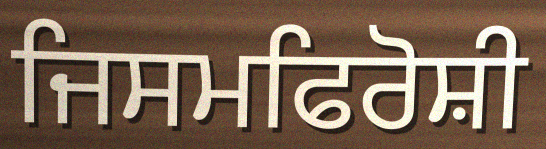
ਜਿਸਮਫਿਰੋਸ਼ੀ